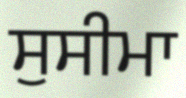
ਸੁਸੀਮਾ